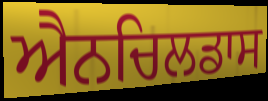
ਐਨਚਿਲਡਾਸ